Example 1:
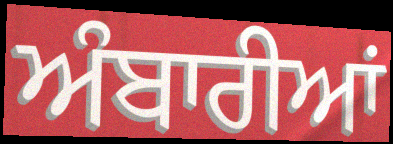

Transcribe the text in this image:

ਅੰਬਾਰੀਆਂ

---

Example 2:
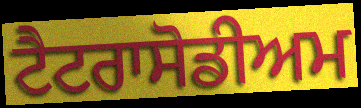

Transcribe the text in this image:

ਟੈਟਰਾਸੋਡੀਅਮ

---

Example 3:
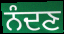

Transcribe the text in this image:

ਨੰਦਣ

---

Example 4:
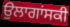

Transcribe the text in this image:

ਉਲਾਗਾਂਸਕੀ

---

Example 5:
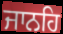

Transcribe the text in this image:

ਜਾਨਹਿ